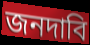
জনদাবি